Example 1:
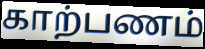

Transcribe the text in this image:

காற்பணம்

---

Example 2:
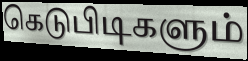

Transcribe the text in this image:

கெடுபிடிகளும்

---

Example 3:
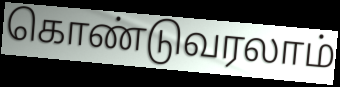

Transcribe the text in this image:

கொண்டுவரலாம்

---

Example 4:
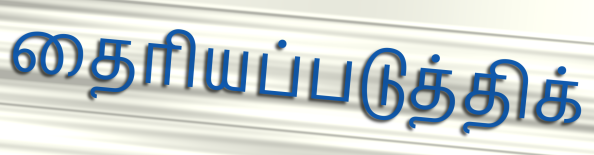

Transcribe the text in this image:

தைரியப்படுத்திக்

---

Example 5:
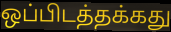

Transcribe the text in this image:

ஒப்பிடத்தக்கது